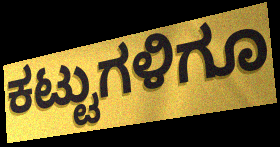
ಕಟ್ಟುಗಳಿಗೂ